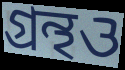
গ্ৰন্থও